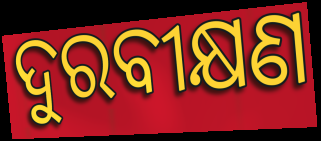
ଦୁରବୀକ୍ଷଣ